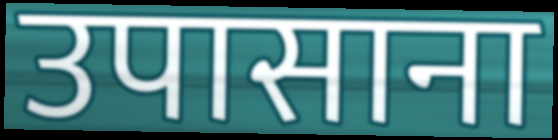
उपासाना